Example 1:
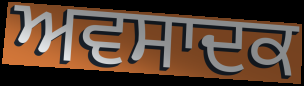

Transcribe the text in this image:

ਅਵਸਾਦਕ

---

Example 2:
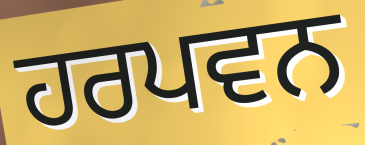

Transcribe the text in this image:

ਹਰਪਵਨ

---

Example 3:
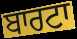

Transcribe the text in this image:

ਬਾਰਟਾ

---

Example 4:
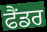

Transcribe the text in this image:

ਫੈਂਡਰ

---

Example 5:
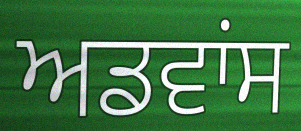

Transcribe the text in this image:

ਅਡਵਾਂਸ